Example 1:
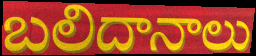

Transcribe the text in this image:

బలిదానాలు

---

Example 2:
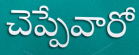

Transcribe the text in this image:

చెప్పేవారో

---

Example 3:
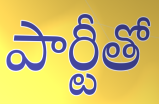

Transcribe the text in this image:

పార్టీతో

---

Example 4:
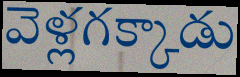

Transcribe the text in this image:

వెళ్లగక్కాడు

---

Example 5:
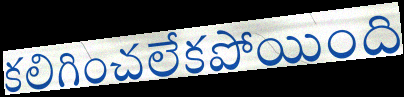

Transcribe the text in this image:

కలిగించలేకపోయింది